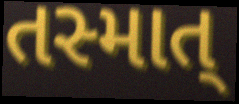
તસ્માત્